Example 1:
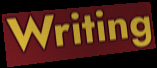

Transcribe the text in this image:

Writing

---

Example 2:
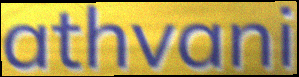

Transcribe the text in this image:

athvani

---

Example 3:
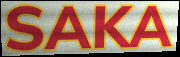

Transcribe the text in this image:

SAKA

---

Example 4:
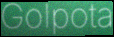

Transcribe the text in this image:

Golpota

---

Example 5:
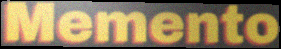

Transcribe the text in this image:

Memento